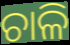
ଚାଳି